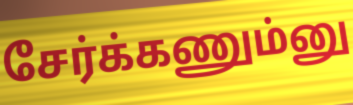
சேர்க்கணும்னு